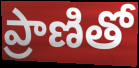
ప్రాణితో